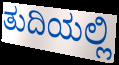
ತುದಿಯಲ್ಲಿ